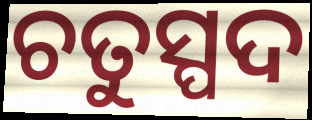
ଚତୁସ୍ପଦ